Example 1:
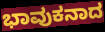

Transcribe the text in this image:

ಭಾವುಕನಾದ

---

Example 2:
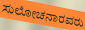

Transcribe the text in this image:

ಸುಲೋಚನಾರವರು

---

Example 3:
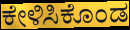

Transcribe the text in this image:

ಕೇಳಿಸಿಕೊಂಡ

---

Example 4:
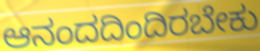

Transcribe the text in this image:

ಆನಂದದಿಂದಿರಬೇಕು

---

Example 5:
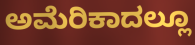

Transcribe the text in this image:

ಅಮೆರಿಕಾದಲ್ಲೂ